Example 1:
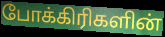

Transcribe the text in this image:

போக்கிரிகளின்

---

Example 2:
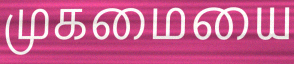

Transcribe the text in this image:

முகமையை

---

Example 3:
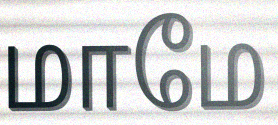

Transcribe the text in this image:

மாமே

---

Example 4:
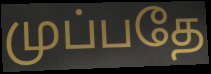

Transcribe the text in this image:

முப்பதே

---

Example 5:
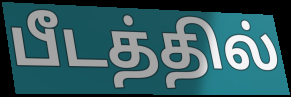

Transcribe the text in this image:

பீடத்தில்